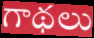
గాథలు